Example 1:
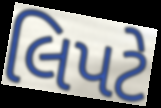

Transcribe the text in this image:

લિપટે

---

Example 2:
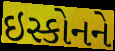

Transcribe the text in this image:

ઇસ્કોનને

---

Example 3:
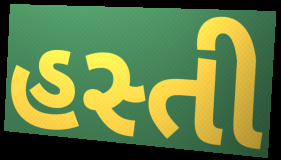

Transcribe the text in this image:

હસ્તી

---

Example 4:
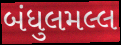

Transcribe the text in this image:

બંધુલમલ્લ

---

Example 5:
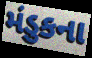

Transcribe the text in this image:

મંડુકના